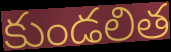
కుండలిత